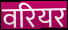
वरियर